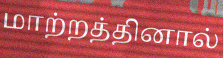
மாற்றத்தினால்